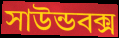
সাউন্ডবক্স